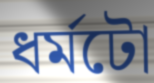
ধৰ্মটো